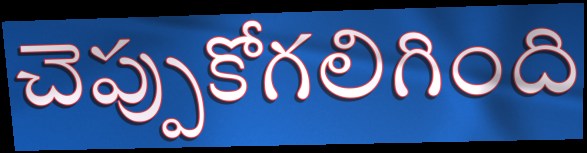
చెప్పుకోగలిగింది